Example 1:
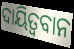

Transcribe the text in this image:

ଦାୟିତ୍ଵବାନ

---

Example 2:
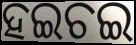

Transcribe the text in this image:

ହଇଚଇ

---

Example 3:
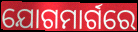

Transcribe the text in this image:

ଯୋଗମାର୍ଗରେ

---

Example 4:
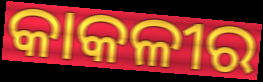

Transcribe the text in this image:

କାକଳୀର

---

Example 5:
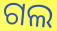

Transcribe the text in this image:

ଗଲ